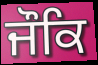
ਜੌਕਿ